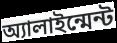
অ্যালাইন্মেন্ট